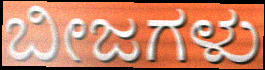
ಬೀಜಗಳು